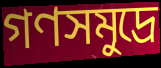
গণসমুদ্রে